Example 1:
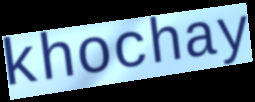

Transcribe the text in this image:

khochay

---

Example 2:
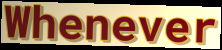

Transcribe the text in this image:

Whenever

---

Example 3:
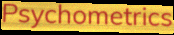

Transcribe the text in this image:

Psychometrics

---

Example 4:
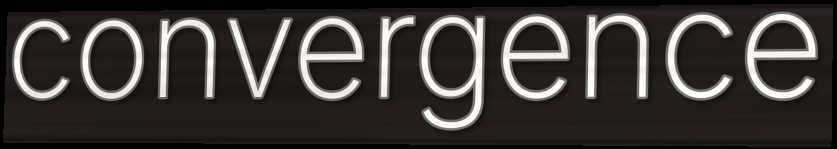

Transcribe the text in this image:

convergence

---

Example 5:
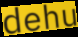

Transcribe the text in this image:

dehu